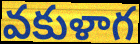
వకుళాగ